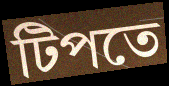
টিপতে